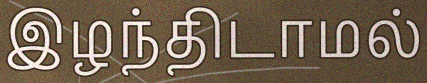
இழந்திடாமல்